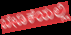
ಬೇಡಿಕೆಯಲ್ಲಿ